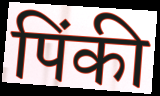
पिंकी